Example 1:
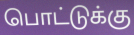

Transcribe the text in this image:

பொட்டுக்கு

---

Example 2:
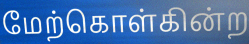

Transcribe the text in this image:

மேற்கொள்கின்ற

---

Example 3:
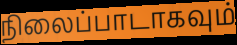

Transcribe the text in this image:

நிலைப்பாடாகவும்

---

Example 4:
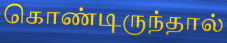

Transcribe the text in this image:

கொண்டிருந்தால்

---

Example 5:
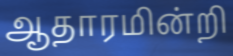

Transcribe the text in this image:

ஆதாரமின்றி